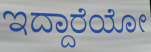
ಇದ್ದಾರೆಯೋ